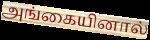
அங்கையினால்